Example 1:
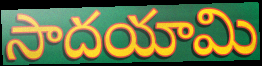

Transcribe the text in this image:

సాదయామి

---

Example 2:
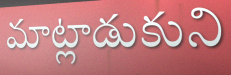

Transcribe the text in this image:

మాట్లాడుకుని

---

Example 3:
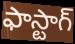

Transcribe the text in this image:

ఫాస్టాగ్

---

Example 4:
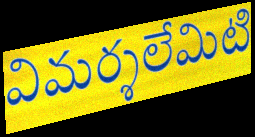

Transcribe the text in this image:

విమర్శలేమిటి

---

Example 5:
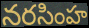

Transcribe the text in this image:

నరసింహ